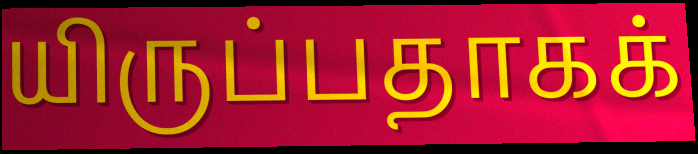
யிருப்பதாகக்